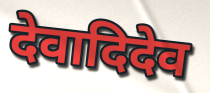
देवादिदेव